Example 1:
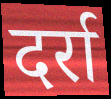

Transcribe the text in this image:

दर्रा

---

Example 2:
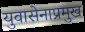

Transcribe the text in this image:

युवासेनाप्रमुख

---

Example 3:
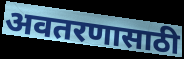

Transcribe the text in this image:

अवतरणासाठी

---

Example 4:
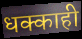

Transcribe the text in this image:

धक्काही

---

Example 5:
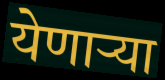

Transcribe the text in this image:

येणाऱ्या